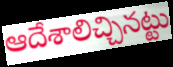
ఆదేశాలిచ్చినట్టు